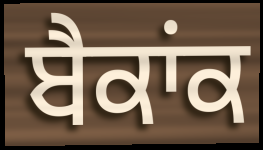
ਬੈਕਾਂਕ